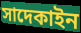
সাদেকাইন